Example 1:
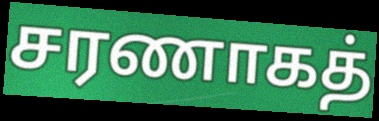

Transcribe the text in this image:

சரணாகத்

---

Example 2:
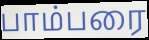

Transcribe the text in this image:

பாம்பரை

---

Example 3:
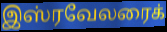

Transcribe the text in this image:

இஸ்ரவேலரைக்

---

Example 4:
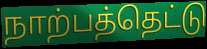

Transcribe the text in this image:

நாற்பத்தெட்டு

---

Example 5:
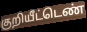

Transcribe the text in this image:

குறியீட்டெண்